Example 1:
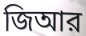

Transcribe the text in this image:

জিআর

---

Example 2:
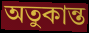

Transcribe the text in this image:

অতুকান্ত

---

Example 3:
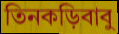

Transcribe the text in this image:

তিনকড়িবাবু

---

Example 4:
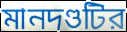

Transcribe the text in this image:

মানদণ্ডটির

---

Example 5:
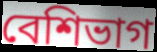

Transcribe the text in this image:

বেশিভাগ